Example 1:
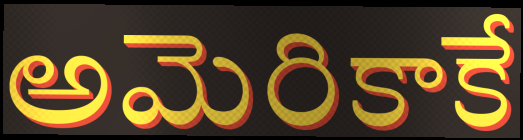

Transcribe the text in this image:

అమెరికాకే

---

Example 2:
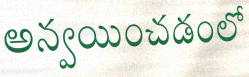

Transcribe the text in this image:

అన్వయించడంలో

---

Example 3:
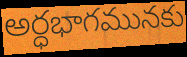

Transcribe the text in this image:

అర్ధభాగమునకు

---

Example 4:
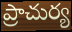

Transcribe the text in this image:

ప్రాచుర్య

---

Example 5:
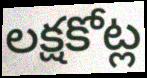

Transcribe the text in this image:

లక్షకోట్ల